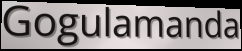
Gogulamanda